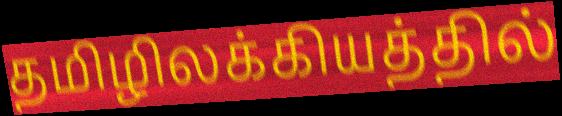
தமிழிலக்கியத்தில்